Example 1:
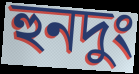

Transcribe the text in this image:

হুনদুং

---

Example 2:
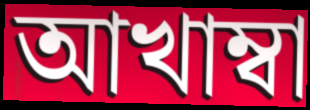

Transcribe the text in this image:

আখাম্বা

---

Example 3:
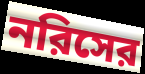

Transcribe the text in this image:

নরিসের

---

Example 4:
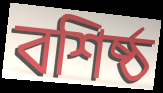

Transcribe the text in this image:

বশিষ্ঠ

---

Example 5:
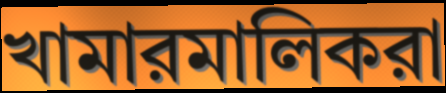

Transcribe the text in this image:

খামারমালিকরা